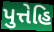
પુત્તેહિ